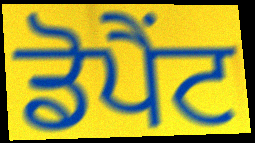
ਡੋਪੈਂਟ